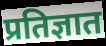
प्रतिज्ञात